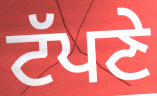
ਟੱਪਣੇ